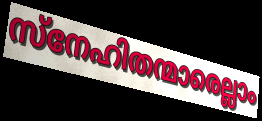
സ്നേഹിതന്മാരെല്ലാം